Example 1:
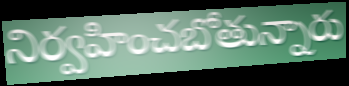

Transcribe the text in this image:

నిర్వహించబోతున్నారు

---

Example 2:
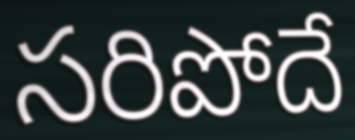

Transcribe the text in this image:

సరిపోదే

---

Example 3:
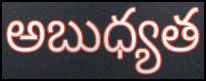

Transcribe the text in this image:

అబుధ్యత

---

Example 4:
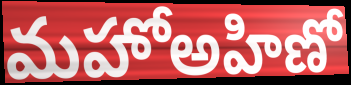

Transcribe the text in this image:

మహోఅహిణో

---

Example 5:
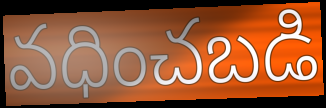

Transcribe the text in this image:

వధించబడి